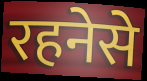
रहनेसे